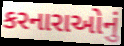
કરનારાઓનું